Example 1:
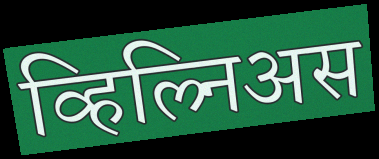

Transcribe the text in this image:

व्हिल्निअस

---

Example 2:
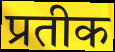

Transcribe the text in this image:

प्रतीक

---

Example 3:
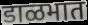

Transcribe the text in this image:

डाळभात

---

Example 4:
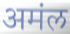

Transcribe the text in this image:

अमंल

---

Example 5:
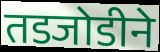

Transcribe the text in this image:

तडजोडीने